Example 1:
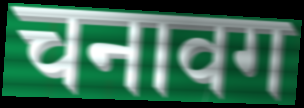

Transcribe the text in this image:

चनावग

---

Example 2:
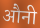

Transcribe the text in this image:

औनी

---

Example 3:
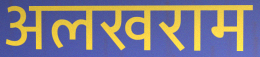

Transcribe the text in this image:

अलखराम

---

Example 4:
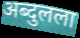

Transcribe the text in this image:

अब्दुलला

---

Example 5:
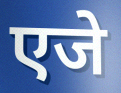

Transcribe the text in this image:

एजे